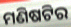
ମଣିଷଟିର